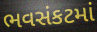
ભવસંકટમાં